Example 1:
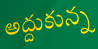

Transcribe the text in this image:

అద్దుకున్న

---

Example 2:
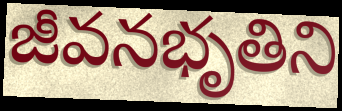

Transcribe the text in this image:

జీవనభృతిని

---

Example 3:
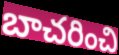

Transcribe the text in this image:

బాచరించి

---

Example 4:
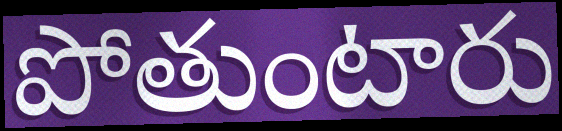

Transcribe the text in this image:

పోతుంటారు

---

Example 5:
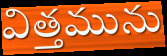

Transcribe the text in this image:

విత్తమును